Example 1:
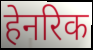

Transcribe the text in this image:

हेनरिक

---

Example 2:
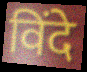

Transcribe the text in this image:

विंदे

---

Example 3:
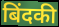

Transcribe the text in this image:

बिंदकी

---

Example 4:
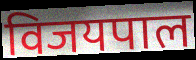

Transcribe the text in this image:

विजयपाल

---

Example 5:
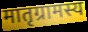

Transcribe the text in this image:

मातृग्रामस्य